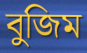
বুজিম